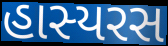
હાસ્યરસ